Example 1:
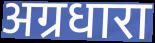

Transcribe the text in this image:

अग्रधारा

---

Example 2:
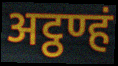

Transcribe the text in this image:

अट्ठण्हं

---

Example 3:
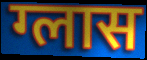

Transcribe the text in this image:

ग्लास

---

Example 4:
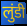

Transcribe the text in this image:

लुंडी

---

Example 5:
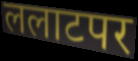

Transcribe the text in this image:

ललाटपर